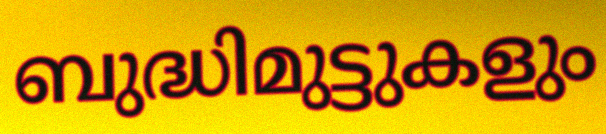
ബുദ്ധിമുട്ടുകളും